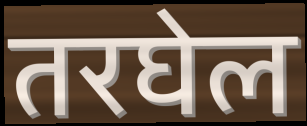
तरघेल